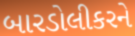
બારડોલીકરને